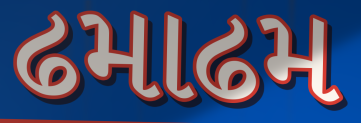
ઢમાઢમ